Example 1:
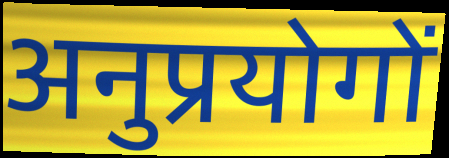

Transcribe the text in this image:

अनुप्रयोगों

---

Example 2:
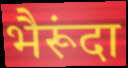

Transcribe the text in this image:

भैरूंदा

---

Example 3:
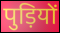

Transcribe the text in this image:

पुड़ियों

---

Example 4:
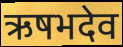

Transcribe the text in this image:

ऋषभदेव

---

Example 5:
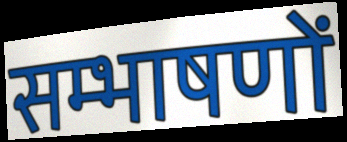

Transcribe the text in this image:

सम्भाषणों